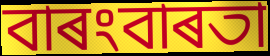
বাৰংবাৰতা